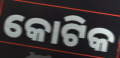
କୋଟିକ